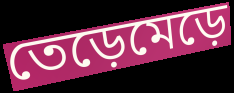
তেড়েমেড়ে